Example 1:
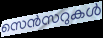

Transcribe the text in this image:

സെൻസറുകൾ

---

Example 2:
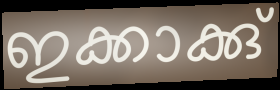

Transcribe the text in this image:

ഇക്കാക്കു്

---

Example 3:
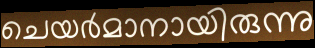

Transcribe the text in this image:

ചെയർമാനായിരുന്നു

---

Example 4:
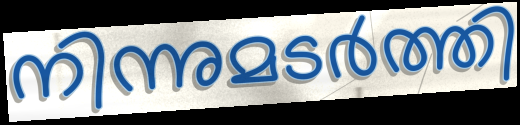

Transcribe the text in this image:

നിന്നുമടർത്തി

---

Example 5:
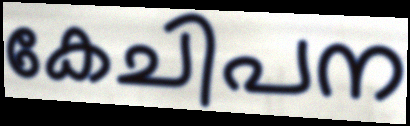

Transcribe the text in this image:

കേചിപന